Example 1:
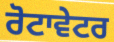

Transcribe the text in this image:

ਰੋਟਾਵੇਟਰ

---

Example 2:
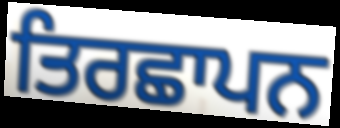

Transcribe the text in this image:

ਤਿਰਛਾਪਨ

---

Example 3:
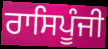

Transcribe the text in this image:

ਰਾਸਿਪੂੰਜੀ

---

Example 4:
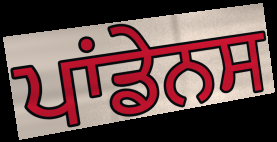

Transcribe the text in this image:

ਪਾਂਡੇਨਸ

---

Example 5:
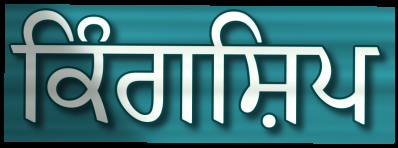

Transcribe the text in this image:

ਕਿੰਗਸ਼ਿਪ